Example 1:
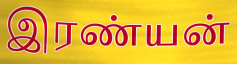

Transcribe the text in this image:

இரண்யன்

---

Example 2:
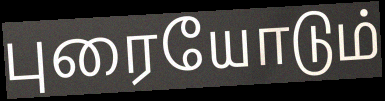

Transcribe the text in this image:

புரையோடும்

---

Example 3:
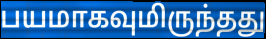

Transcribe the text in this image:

பயமாகவுமிருந்தது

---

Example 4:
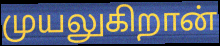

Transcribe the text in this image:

முயலுகிறான்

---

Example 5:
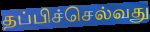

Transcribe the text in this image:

தப்பிச்செல்வது